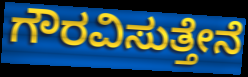
ಗೌರವಿಸುತ್ತೇನೆ